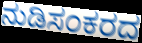
ನುಡಿಸಂಕರದ